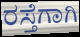
ರಸ್ತೆಗಾಗಿ